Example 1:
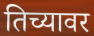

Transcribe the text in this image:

तिच्यावर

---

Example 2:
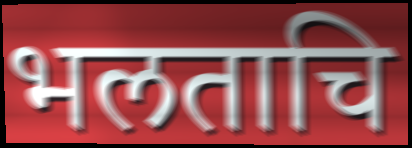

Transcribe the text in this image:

भलताचि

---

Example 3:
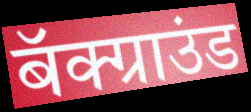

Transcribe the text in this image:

बॅक्ग्राउंड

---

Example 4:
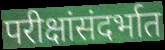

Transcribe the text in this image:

परीक्षांसंदर्भात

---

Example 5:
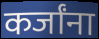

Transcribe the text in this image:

कर्जांना